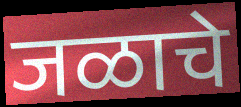
जळाचे